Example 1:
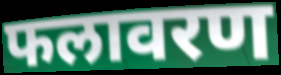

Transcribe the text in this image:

फलावरण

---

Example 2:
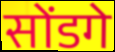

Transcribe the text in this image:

सोंडगे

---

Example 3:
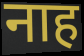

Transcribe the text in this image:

नाह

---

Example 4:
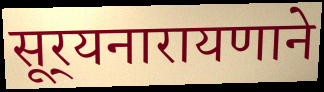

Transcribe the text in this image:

सूर्यनारायणाने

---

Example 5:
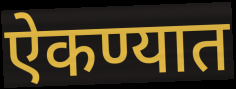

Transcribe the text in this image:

ऐकण्यात